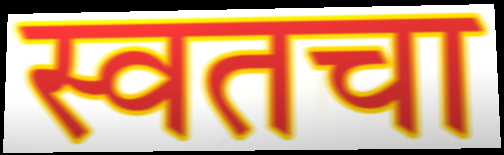
स्वतचा